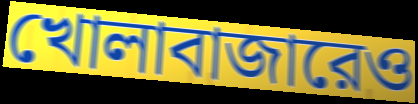
খোলাবাজারেও